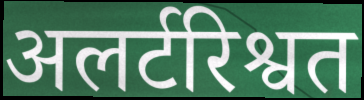
अलर्टरिश्वत